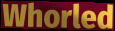
Whorled